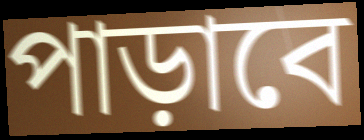
পাড়াবে